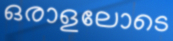
ഒരാളലോടെ